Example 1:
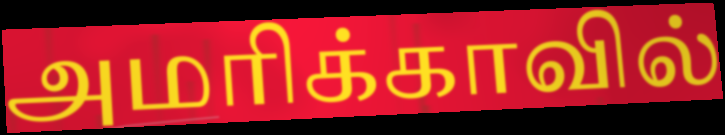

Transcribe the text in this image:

அமரிக்காவில்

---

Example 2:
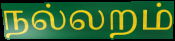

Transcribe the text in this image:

நல்லறம்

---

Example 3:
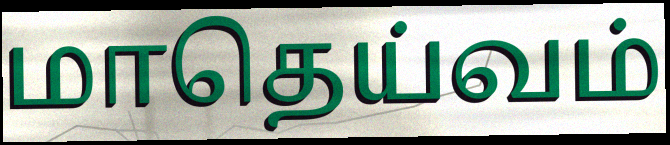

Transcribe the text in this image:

மாதெய்வம்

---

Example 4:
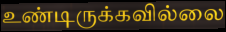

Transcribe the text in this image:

உண்டிருக்கவில்லை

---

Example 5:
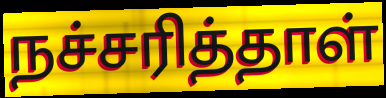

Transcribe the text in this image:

நச்சரித்தாள்